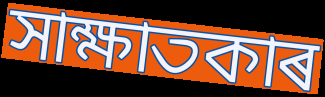
সাক্ষাতকাৰ